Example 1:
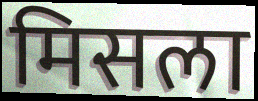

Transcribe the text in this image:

मिसला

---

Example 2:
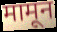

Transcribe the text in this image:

मामून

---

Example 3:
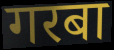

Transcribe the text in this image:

गरबा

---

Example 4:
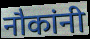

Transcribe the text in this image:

नौकांनी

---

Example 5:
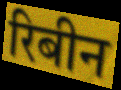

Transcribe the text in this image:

रिबीन